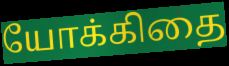
யோக்கிதை